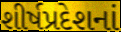
શીર્ષપ્રદેશનાં